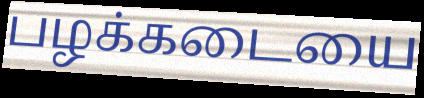
பழக்கடையை